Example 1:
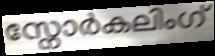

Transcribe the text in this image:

സ്നോർകലിംഗ്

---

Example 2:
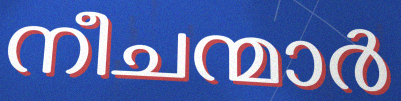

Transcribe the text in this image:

നീചന്മാർ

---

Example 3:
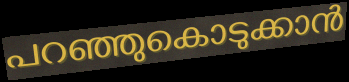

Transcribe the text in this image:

പറഞ്ഞുകൊടുക്കാൻ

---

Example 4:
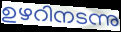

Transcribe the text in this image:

ഉഴറിനടന്നു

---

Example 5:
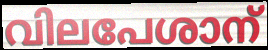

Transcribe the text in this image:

വിലപേശാന്